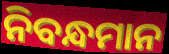
ନିବନ୍ଧମାନ